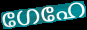
ഗേഹേ